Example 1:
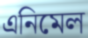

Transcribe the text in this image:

এনিমেল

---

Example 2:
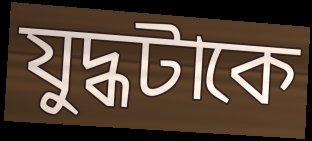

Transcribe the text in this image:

যুদ্ধটাকে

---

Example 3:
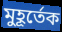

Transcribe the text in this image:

মুহূর্তেক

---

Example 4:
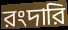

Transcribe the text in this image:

রংদারি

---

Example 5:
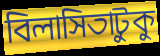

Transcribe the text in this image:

বিলাসিতাটুকু